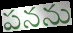
పనను